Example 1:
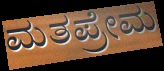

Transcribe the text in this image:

ಮತಪ್ರೇಮ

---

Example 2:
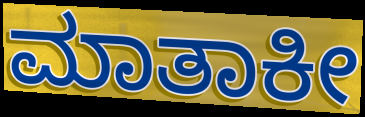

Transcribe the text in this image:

ಮಾತಾಕೀ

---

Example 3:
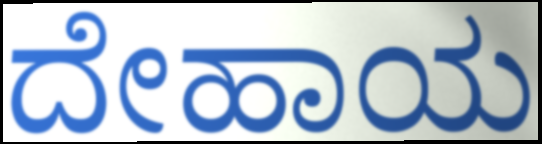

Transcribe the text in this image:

ದೇಹಾಯ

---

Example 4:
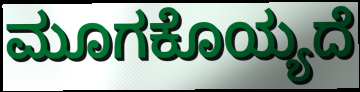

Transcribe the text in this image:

ಮೂಗಕೊಯ್ಯದೆ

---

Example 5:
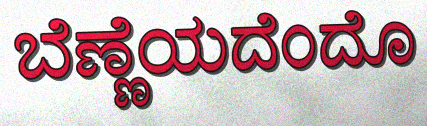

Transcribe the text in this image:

ಬೆಣ್ಣೆಯದೆಂದೊ